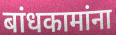
बांधकामांना